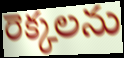
రెక్కలను